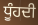
ਧੂੰਹਦੀ